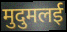
मुदुमलई